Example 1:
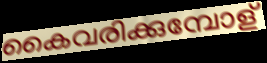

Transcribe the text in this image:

കൈവരിക്കുമ്പോള്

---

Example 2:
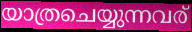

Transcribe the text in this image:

യാത്രചെയ്യുന്നവര്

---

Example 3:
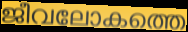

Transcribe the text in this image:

ജീവലോകത്തെ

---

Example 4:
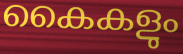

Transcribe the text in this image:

കൈകളും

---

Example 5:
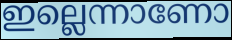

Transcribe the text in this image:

ഇല്ലെന്നാണോ